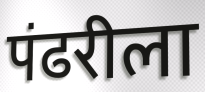
पंढरीला